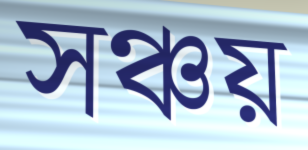
সঞ্চয়